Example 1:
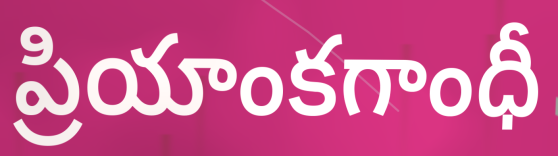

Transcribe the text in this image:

ప్రియాంకగాంధీ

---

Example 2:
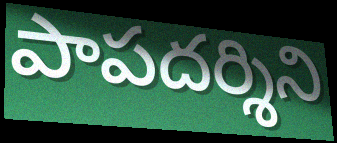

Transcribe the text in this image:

పాపదర్శిని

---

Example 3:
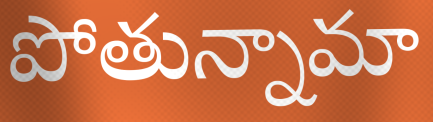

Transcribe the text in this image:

పోతున్నామా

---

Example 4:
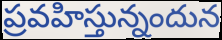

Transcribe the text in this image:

ప్రవహిస్తున్నందున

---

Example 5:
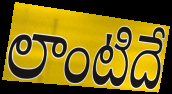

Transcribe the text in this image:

లాంటిదే